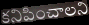
కనిపించాలని